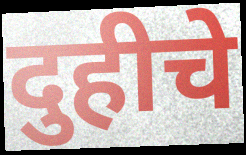
दुहीचे